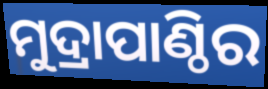
ମୁଦ୍ରାପାଣ୍ଠିର